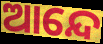
ଆନ୍ଦେ